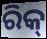
ରିକ୍